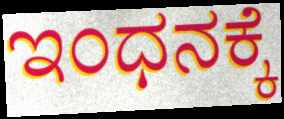
ಇಂಧನಕ್ಕೆ